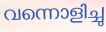
വന്നൊളിച്ചു